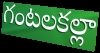
గంటలకల్లా